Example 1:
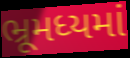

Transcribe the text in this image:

ભ્રૂમધ્યમાં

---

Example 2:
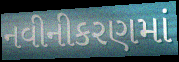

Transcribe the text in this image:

નવીનીકરણમાં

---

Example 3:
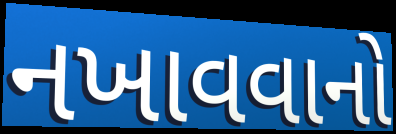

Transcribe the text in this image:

નખાવવાનો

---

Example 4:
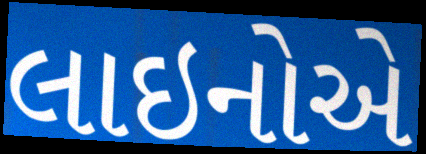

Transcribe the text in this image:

લાઇનોએ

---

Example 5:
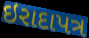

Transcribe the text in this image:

ઇરાદાપત્ર